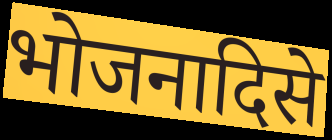
भोजनादिसे